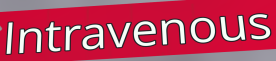
Intravenous